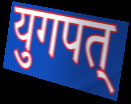
युगपत्